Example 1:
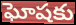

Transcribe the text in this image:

ఘోషకు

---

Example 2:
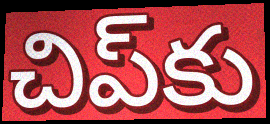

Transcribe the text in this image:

చిప్‌కు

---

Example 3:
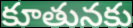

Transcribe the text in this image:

కూతునకు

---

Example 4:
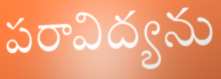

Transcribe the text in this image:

పరావిద్యను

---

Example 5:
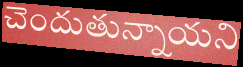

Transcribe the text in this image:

చెందుతున్నాయని